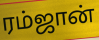
ரம்ஜான்